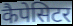
कैपेसिटर